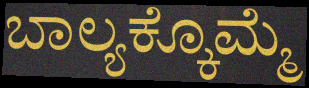
ಬಾಲ್ಯಕ್ಕೊಮ್ಮೆ